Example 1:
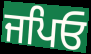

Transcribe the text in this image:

ਜਪਿਓ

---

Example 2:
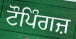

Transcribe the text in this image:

ਟੌਪਿੰਗਜ਼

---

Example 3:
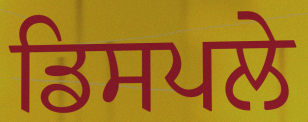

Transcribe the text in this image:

ਡਿਸਪਲੇ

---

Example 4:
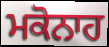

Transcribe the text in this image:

ਮਕੋਨਾਹ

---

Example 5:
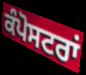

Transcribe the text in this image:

ਕੰਪੋਸਟਰਾਂ